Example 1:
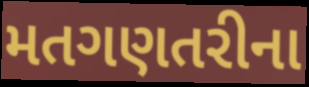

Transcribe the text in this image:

મતગણતરીના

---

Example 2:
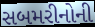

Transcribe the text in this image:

સબમરીનોની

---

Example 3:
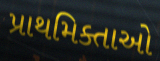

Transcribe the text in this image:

પ્રાથમિક્તાઓ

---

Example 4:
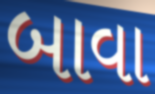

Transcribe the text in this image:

બાવા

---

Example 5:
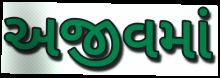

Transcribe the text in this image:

અજીવમાં